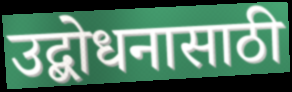
उद्बोधनासाठी